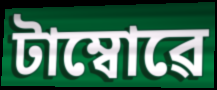
টাম্বোৱে